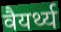
वैयर्थ्य